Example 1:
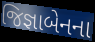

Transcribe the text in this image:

જિજ્ઞાબેનના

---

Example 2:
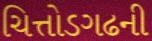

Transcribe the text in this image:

ચિત્તોડગઢની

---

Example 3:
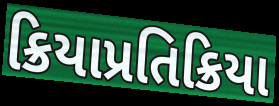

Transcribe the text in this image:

ક્રિયાપ્રતિક્રિયા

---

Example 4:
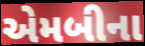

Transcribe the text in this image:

એમબીના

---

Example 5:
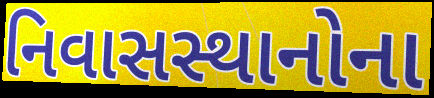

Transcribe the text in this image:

નિવાસસ્થાનોના